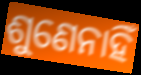
ଶୁଣେନାହିଁ